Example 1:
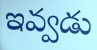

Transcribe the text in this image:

ఇవ్వడు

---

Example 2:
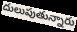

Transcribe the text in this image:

దులుపుతున్నారు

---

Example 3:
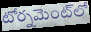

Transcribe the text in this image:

టోర్నమెంట్‌లో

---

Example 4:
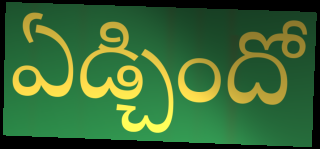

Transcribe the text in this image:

ఏడ్చిందో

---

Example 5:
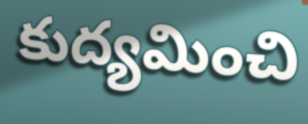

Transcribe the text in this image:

కుద్యమించి